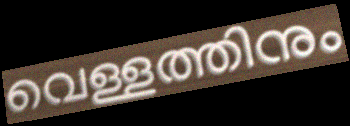
വെള്ളത്തിനും